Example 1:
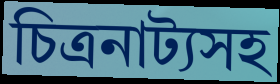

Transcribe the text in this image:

চিত্রনাট্যসহ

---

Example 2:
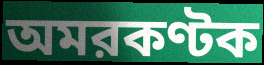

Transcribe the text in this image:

অমরকণ্টক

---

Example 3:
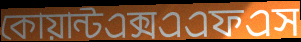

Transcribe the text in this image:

কোয়ান্টএক্সএএফএস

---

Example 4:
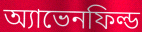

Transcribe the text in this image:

অ্যাভেনফিল্ড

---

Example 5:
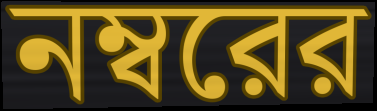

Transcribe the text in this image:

নম্বরের